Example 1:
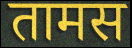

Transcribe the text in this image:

तामस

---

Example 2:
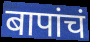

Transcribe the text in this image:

बापांचं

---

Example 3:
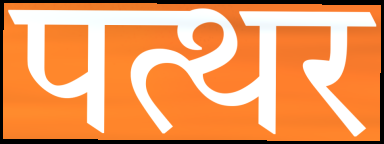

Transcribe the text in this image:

पत्थर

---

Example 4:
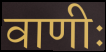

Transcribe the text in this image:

वाणीः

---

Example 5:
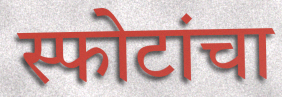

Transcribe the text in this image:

स्फोटांचा